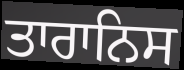
ਤਾਰਾਨਿਸ